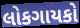
લોકગાયકો